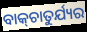
ବାକ୍‍ଚାତୁର୍ଯ୍ୟର